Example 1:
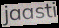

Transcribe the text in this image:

jaasti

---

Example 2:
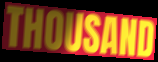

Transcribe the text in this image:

THOUSAND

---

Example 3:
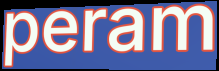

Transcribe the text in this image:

peram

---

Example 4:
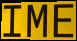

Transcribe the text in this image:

IME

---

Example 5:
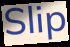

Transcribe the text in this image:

Slip